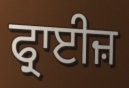
ਫ੍ਰਾਈਜ਼